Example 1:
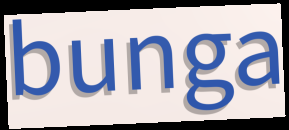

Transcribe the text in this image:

bunga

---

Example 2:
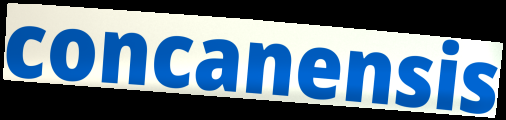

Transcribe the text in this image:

concanensis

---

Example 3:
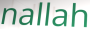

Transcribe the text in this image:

nallah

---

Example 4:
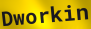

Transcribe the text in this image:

Dworkin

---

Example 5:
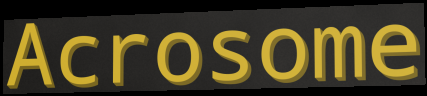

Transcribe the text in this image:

Acrosome